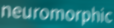
neuromorphic